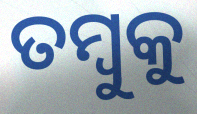
ତମ୍ବୁକୁ